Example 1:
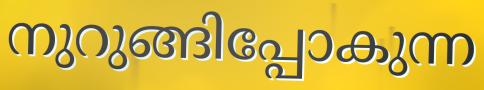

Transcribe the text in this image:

നുറുങ്ങിപ്പോകുന്ന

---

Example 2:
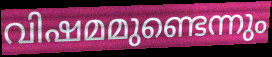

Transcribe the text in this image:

വിഷമമുണ്ടെന്നും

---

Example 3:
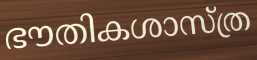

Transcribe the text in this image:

ഭൗതികശാസ്ത്ര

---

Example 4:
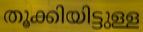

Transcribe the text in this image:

തൂക്കിയിട്ടുള്ള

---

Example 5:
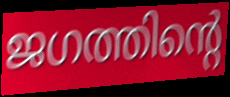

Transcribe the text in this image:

ജഗത്തിന്റെ